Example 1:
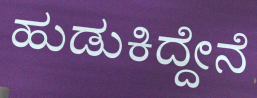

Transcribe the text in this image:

ಹುಡುಕಿದ್ದೇನೆ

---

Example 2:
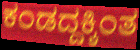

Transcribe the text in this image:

ಕಂಡದ್ದಕ್ಕಿಂತ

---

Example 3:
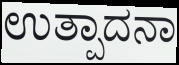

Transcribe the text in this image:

ಉತ್ಪಾದನಾ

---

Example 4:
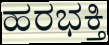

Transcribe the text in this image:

ಹರಭಕ್ತಿ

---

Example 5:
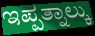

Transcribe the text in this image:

ಇಪ್ಪತ್ನಾಲ್ಕು